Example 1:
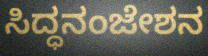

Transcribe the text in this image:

ಸಿದ್ಧನಂಜೇಶನ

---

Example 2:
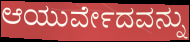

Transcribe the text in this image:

ಆಯುರ್ವೇದವನ್ನು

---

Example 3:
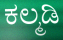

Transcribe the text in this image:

ಕಲ್ಮಡಿ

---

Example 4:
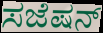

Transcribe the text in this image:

ಸಜೆಷನ್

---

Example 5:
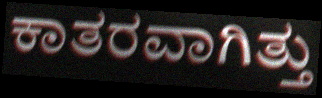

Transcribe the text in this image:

ಕಾತರವಾಗಿತ್ತು